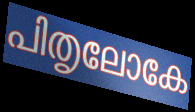
പിതൃലോകേ